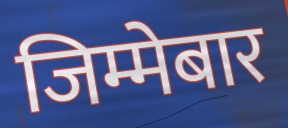
जिम्मेबार